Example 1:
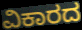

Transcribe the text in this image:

ವಿಕಾರದ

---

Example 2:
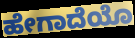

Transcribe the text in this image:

ಹೇಗಾದೆಯೊ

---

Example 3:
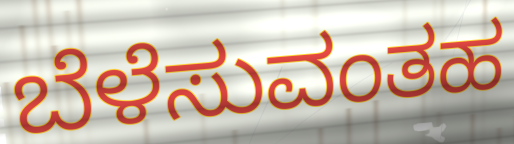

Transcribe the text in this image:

ಬೆಳೆಸುವಂತಹ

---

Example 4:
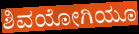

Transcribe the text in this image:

ಶಿವಯೋಗಿಯೂ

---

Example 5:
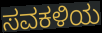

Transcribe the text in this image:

ಸವಕಳಿಯ